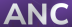
ANC